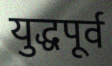
युद्धपूर्व